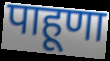
पाहूणा